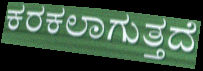
ಕರಕಲಾಗುತ್ತದೆ